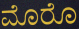
ಮೊರೊ